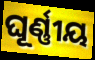
ଘୂର୍ଣ୍ଣୀୟ